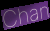
Chan